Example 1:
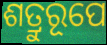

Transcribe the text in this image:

ଶତ୍ରୁରୂପେ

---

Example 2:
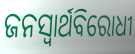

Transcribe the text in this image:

ଜନସ୍ଵାର୍ଥବିରୋଧୀ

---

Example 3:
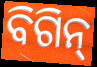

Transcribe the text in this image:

ବିଗିନ୍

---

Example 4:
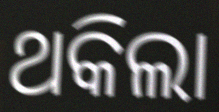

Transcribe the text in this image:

ଥକିଲା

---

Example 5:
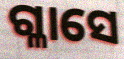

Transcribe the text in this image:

ଗ୍ଳାସେ